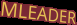
MLEADER